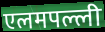
एलमपल्ली